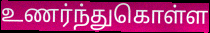
உணர்ந்துகொள்ள